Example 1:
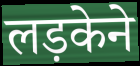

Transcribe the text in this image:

लड़केने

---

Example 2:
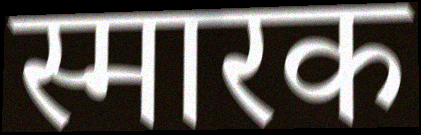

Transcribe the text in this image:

स्मारक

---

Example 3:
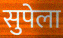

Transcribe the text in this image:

सुपेला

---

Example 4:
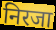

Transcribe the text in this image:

निरजा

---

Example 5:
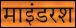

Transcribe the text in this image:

माइंडरश